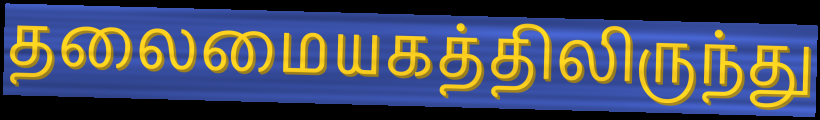
தலைமையகத்திலிருந்து